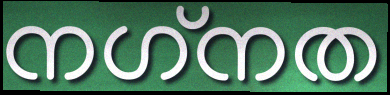
നഗ്‌നത